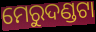
ମେରୁଦଣ୍ଡଟା